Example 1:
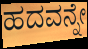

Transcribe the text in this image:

ಹದವನ್ನೇ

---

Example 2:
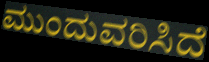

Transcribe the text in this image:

ಮುಂದುವರಿಸಿದೆ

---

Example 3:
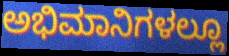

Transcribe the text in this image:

ಅಭಿಮಾನಿಗಳಲ್ಲೂ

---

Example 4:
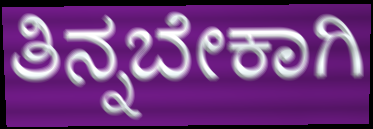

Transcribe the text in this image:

ತಿನ್ನಬೇಕಾಗಿ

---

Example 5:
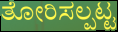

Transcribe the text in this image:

ತೋರಿಸಲ್ಪಟ್ಟ